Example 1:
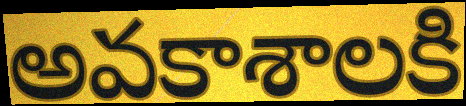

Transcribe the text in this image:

అవకాశాలకి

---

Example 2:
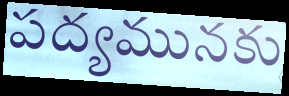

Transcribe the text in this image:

పద్యమునకు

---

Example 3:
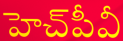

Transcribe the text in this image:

హెచ్‌పీవీ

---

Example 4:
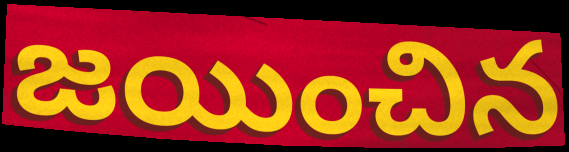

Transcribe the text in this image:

జయించిన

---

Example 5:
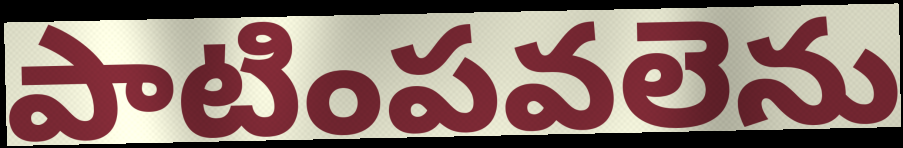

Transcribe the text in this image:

పాటింపవలెను